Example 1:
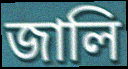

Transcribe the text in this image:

জালি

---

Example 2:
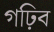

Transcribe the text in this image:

গঢ়িব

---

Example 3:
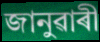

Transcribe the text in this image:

জানুৱাৰী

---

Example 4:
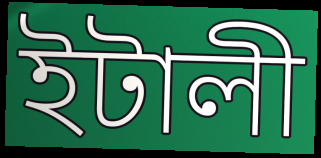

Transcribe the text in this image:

ইটালী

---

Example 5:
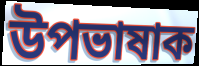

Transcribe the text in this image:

উপভাষাক